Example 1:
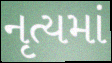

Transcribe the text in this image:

નૃત્યમાં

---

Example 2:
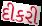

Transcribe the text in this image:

દીકરી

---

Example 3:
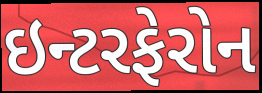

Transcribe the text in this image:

ઇન્ટરફેરોન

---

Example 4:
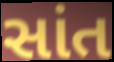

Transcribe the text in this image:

સાંત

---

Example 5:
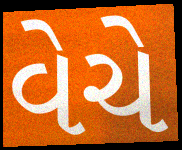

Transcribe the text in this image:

વેચે